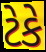
ટેકે